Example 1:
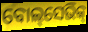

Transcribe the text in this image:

ବୋଲ୍‌ସେଭିକ୍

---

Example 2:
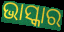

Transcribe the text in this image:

ଭାସ୍କାର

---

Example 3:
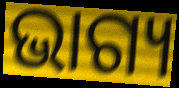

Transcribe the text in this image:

ଭାଗ୍ୟ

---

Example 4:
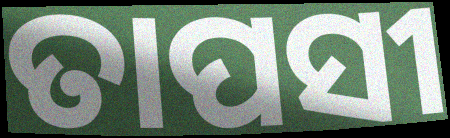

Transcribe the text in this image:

ତାପସୀ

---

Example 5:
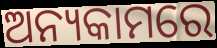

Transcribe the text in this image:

ଅନ୍ୟକାମରେ